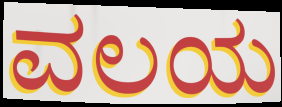
ವಲಯ